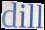
dill